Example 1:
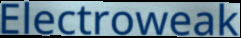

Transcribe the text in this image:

Electroweak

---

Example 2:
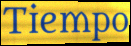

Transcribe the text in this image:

Tiempo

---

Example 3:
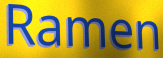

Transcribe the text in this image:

Ramen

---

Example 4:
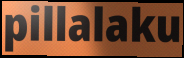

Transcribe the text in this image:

pillalaku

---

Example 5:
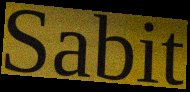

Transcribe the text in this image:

Sabit